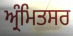
ਅ੍ਰੰਮਿਤਸਰ